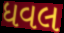
ધવલ